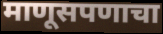
माणूसपणाचा